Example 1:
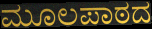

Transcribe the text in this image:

ಮೂಲಪಾಠದ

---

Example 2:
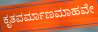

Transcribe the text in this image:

ಕೃತವರ್ಮಾಣಮಾಹವೇ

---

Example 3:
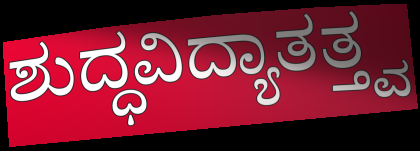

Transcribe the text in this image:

ಶುದ್ಧವಿದ್ಯಾತತ್ತ್ವ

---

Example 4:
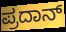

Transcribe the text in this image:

ಪ್ರದಾನ್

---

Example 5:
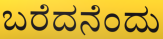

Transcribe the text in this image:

ಬರೆದನೆಂದು